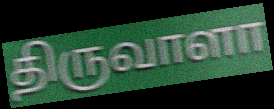
திருவாளா